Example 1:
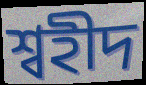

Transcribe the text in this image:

শ্বহীদ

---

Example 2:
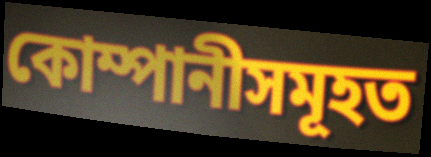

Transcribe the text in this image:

কোম্পানীসমূহত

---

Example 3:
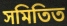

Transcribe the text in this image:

সমিতিত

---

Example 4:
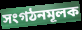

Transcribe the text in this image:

সংগঠনমূলক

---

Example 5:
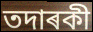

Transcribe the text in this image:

তদাৰকী